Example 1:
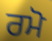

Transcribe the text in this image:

ਰਮੋ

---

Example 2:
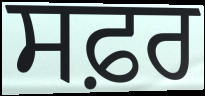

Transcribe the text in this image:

ਸਫ਼ਰ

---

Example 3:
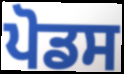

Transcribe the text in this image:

ਪੋਡਸ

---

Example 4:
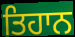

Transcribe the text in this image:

ਤਿਹਾਨ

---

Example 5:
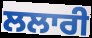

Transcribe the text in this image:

ਲਲਾਰੀ